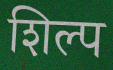
शिल्प